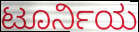
ಟೂರ್ನಿಯ